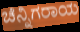
ಚೆನ್ನಿಗರಾಯ